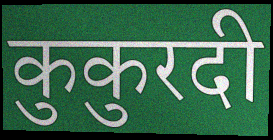
कुकुरदी